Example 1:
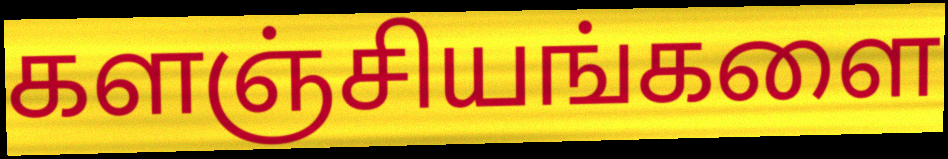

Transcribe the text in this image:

களஞ்சியங்களை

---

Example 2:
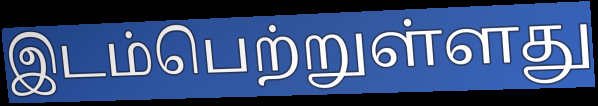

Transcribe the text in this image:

இடம்பெற்றுள்ளது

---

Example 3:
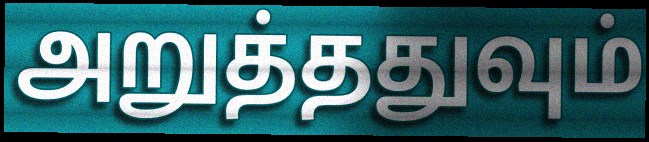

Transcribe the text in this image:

அறுத்ததுவும்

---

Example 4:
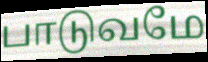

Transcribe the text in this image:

பாடுவமே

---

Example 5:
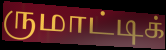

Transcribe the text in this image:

ருமாட்டிக்